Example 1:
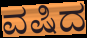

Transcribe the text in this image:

ವಷಿದ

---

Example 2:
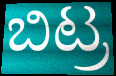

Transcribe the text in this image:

ಬಿಟ್ರ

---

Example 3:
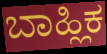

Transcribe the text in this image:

ಬಾಹ್ಲಿಕ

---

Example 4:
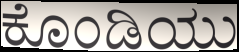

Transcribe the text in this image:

ಕೊಂಡಿಯು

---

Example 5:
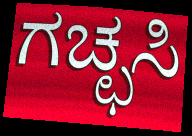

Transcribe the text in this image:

ಗಚ್ಛಸಿ